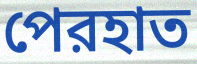
পেরহাত